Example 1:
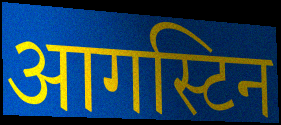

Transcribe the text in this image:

आगस्टिन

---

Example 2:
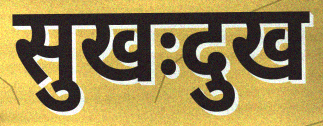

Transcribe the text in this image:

सुखःदुख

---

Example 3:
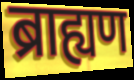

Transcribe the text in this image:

ब्राह्यण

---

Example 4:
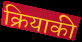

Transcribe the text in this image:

क्रियाकी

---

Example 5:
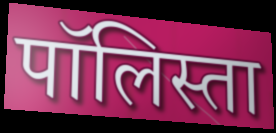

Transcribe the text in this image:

पॉलिस्ता